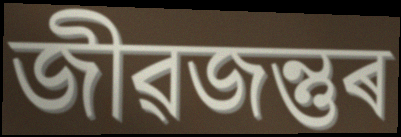
জীৱজন্তুৰ